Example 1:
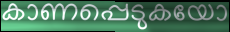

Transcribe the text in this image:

കാണപ്പെടുകയോ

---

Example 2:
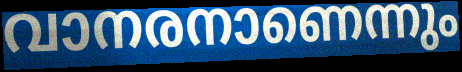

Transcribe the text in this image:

വാനരനാണെന്നും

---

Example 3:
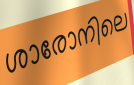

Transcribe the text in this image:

ശാരോനിലെ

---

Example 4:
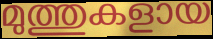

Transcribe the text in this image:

മുത്തുകളായ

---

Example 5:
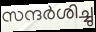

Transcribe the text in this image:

സന്ദർശിച്ചു